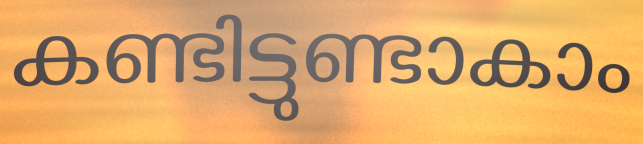
കണ്ടിട്ടുണ്ടാകാം